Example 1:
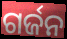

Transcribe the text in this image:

ଗର୍ଜନ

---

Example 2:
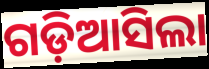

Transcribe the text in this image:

ଗଡ଼ିଆସିଲା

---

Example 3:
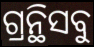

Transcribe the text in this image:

ଗ୍ରନ୍ଥିସବୁ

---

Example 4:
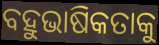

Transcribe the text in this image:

ବହୁଭାଷିକତାକୁ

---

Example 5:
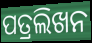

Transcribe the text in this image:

ପତ୍ରଲିଖନ